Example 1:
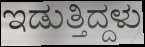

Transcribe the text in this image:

ಇಡುತ್ತಿದ್ದಳು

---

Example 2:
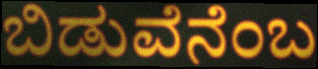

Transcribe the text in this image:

ಬಿಡುವೆನೆಂಬ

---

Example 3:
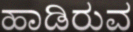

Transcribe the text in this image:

ಹಾಡಿರುವ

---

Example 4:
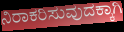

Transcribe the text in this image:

ನಿರಾಕರಿಸುವುದಕ್ಕಾಗಿ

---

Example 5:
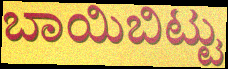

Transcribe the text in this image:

ಬಾಯಿಬಿಟ್ಟು